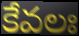
కేవలః